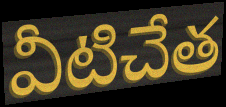
వీటిచేత